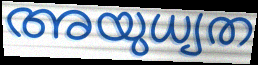
അയുധ്യത